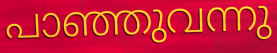
പാഞ്ഞുവന്നു